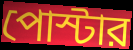
পোস্টার